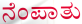
ನೆಂಪಾತು